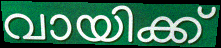
വായിക്ക്